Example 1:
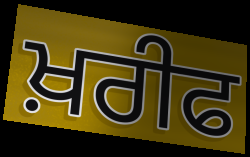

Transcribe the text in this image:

ਖ਼ਰੀਫ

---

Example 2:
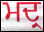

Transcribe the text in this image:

ਮਦ੍ਰ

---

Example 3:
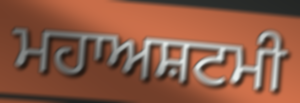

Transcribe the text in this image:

ਮਹਾਅਸ਼ਟਮੀ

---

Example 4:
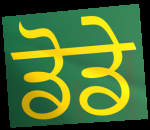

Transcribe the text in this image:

ਡੋਡੇ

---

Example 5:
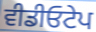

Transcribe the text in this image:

ਵੀਡੀਓਟੇਪ